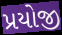
પ્રયોજી